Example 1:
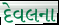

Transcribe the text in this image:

દેવલના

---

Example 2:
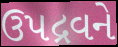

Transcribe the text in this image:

ઉપદ્રવને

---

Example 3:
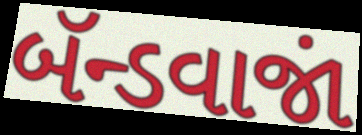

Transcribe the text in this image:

બૅન્ડવાજાં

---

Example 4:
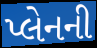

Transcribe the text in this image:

પ્લેનની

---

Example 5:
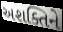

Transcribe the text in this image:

અશક્તિને